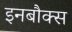
इनबौक्स